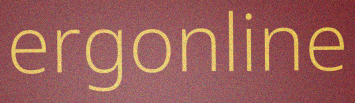
ergonline